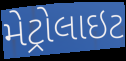
મેટ્રોલાઇટ